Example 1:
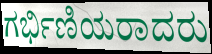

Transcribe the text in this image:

ಗರ್ಭಿಣಿಯರಾದರು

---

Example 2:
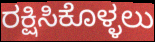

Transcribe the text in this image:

ರಕ್ಷಿಸಿಕೊಳ್ಳಲು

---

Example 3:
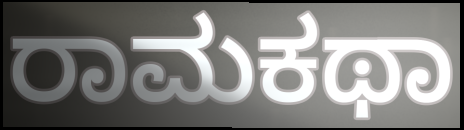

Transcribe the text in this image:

ರಾಮಕಥಾ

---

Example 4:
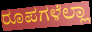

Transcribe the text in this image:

ರೂಪಗಳೆಲ್ಲಾ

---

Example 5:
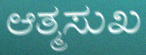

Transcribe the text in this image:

ಆತ್ಮಸುಖ